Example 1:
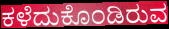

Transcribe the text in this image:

ಕಳೆದುಕೊಂಡಿರುವ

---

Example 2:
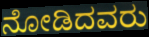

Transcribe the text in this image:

ನೋಡಿದವರು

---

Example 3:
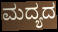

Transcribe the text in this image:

ಮದ್ಯದ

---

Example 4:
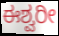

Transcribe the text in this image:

ಈಶ್ವರೀ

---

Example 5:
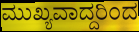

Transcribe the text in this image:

ಮುಖ್ಯವಾದ್ದರಿಂದ